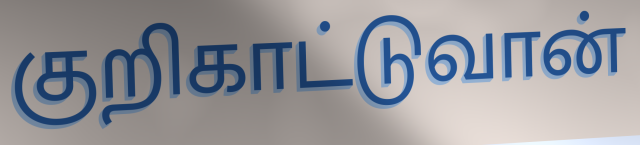
குறிகாட்டுவான்